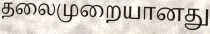
தலைமுறையானது